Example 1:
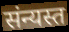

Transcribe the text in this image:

संन्यस्त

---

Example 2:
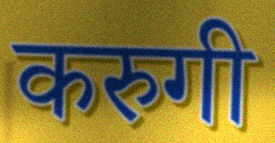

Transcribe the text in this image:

करुगी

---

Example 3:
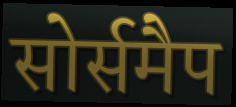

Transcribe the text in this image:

सोर्समैप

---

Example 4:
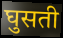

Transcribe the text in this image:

घुसती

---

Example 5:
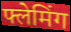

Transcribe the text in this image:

फ्लेमिंग